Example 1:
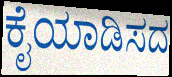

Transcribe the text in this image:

ಕೈಯಾಡಿಸದ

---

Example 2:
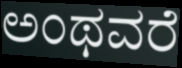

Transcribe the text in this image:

ಅಂಥವರೆ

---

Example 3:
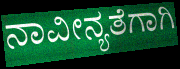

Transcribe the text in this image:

ನಾವೀನ್ಯತೆಗಾಗಿ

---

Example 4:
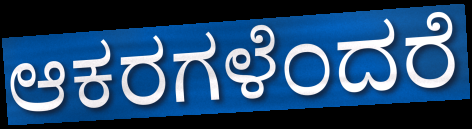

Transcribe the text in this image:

ಆಕರಗಳೆಂದರೆ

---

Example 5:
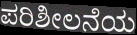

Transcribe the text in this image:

ಪರಿಶೀಲನೆಯ